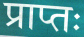
प्राप्तः